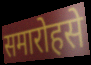
समारोहसे